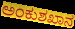
ಅಂಕುಶಖಾನ